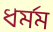
ধর্মম